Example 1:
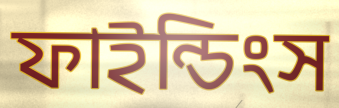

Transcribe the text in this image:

ফাইন্ডিংস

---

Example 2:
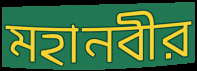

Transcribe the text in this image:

মহানবীর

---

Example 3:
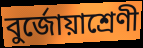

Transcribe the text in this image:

বুর্জোয়াশ্রেণী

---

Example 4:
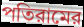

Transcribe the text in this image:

পতিরামের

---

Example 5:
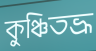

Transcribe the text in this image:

কুঞ্চিতভ্রূ